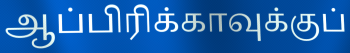
ஆப்பிரிக்காவுக்குப்